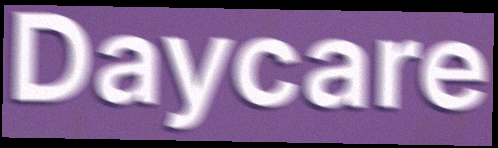
Daycare